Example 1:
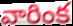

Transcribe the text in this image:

వారింక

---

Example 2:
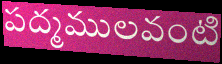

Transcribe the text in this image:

పద్మములవంటి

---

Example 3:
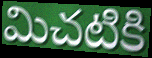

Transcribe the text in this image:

మిచటికి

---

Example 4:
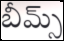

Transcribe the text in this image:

బీమ్స్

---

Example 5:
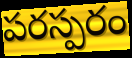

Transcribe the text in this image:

పరస్పరం